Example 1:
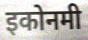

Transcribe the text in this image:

इकोनमी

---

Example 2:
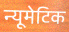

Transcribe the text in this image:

न्यूमेटिक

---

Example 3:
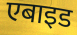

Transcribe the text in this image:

एबाइड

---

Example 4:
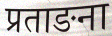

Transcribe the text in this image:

प्रताङना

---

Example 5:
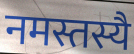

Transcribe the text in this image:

नमस्तस्यै